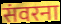
संवरना